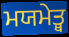
ਮਯਮੇਤ੍ਥ